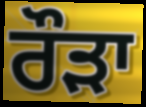
ਰੌੜਾ